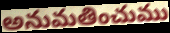
అనుమతించుము